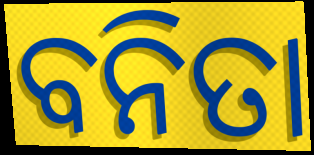
ବନିତା